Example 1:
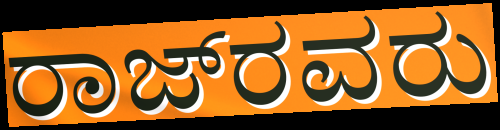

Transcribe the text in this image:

ರಾಜ್‌ರವರು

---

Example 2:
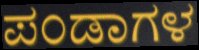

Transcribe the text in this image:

ಪಂಡಾಗಳ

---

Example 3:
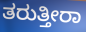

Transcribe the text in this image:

ತರುತ್ತೀರಾ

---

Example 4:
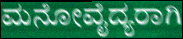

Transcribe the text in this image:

ಮನೋವೈದ್ಯರಾಗಿ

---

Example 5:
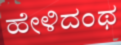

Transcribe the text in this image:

ಹೇಳಿದಂಥ